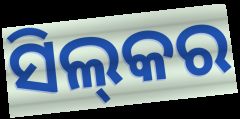
ସିଲ୍‍କର